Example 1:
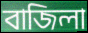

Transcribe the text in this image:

বাজিলা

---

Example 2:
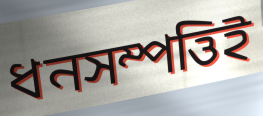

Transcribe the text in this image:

ধনসম্পত্তিই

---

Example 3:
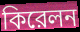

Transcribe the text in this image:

কিরেলন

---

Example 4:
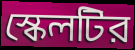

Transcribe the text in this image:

স্কেলটির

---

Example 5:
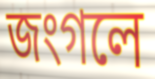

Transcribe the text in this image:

জংগলে